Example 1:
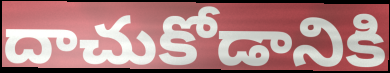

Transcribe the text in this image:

దాచుకోడానికి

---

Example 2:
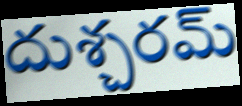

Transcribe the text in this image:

దుశ్చరమ్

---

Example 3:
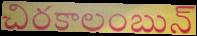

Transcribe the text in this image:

చిరకాలంబున్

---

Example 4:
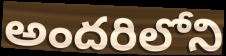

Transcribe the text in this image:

అందరిలోని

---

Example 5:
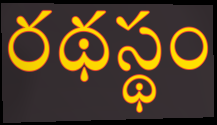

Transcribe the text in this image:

రథస్థం